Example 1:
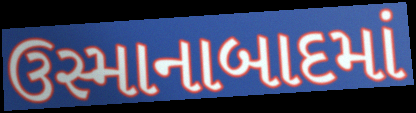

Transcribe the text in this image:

ઉસ્માનાબાદમાં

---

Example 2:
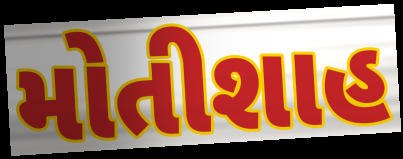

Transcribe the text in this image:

મોતીશાહ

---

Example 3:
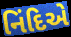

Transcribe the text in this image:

નિંદિએ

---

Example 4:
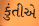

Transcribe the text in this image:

કુંતીએ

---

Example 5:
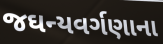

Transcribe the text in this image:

જઘન્યવર્ગણાના